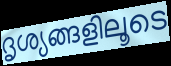
ദൃശ്യങ്ങളിലൂടെ